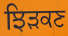
ਝਿੜਕਣ